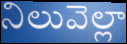
నిలువెల్లా